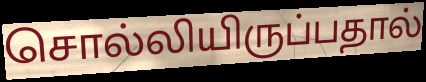
சொல்லியிருப்பதால்